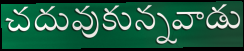
చదువుకున్నవాడు